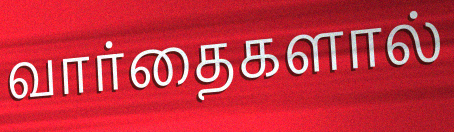
வார்தைகளால்